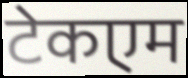
टेकएम